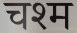
चश्म